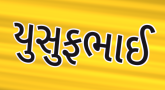
યુસુફભાઈ